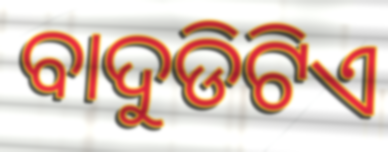
ବାଦୁଡିଟିଏ